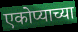
एकोप्याच्या